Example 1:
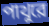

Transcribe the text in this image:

পাথুরে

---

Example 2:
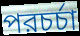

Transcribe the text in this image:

পরচর্চা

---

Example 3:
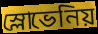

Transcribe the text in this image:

স্লোভেনিয়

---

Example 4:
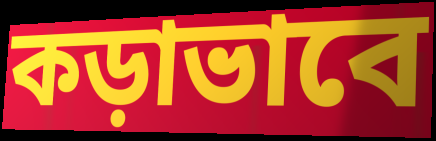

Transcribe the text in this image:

কড়াভাবে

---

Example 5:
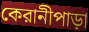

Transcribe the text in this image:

কেরানীপাড়া